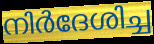
നിർദേശിച്ച